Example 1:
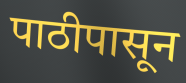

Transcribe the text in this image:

पाठीपासून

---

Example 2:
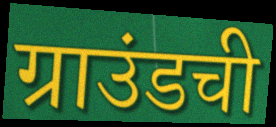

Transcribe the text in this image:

ग्राउंडची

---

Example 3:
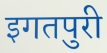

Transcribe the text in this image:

इगतपुरी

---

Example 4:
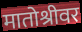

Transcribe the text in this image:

मातोश्रीवर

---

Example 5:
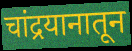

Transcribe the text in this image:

चांद्रयानातून